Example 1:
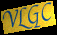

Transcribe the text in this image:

VLGC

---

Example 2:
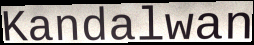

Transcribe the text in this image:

Kandalwan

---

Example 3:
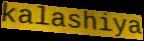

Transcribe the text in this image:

kalashiya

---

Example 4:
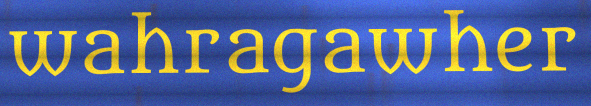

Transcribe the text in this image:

wahragawher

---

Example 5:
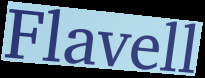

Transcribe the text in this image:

Flavell